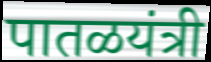
पातळयंत्री